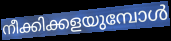
നീക്കിക്കളയുമ്പോൾ